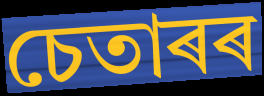
চেতাৰৰ